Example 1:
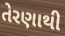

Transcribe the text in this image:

તેરણાથી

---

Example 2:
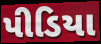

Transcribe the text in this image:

પીડિયા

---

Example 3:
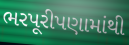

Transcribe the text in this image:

ભરપૂરીપણામાંથી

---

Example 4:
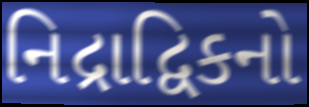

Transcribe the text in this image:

નિદ્રાદ્વિકનો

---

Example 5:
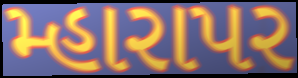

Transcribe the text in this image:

મ્હારાપર